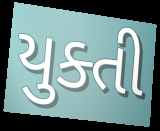
યુક્તી